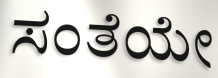
ಸಂತೆಯೇ